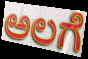
ಅಲಗೆ